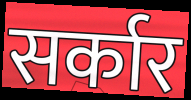
सर्कार